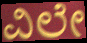
ವಿಲೇ